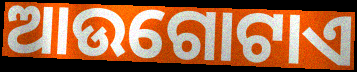
ଆଉଗୋଟାଏ